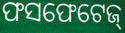
ଫସଫେଟେଜ୍